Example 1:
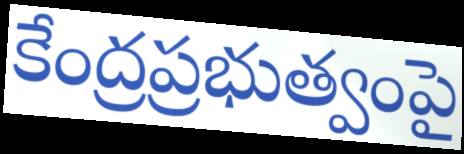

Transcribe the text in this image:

కేంద్రప్రభుత్వంపై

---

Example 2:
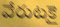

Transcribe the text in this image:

వేరుటకై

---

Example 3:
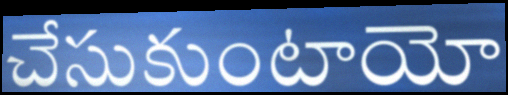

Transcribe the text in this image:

చేసుకుంటాయో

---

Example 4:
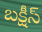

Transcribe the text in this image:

బక్షీస్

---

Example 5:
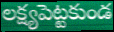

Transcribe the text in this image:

లక్ష్యపెట్టకుండ